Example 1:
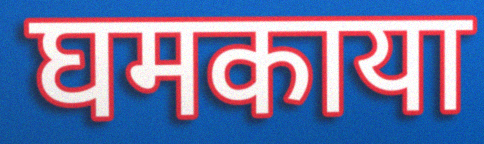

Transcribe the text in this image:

घमकाया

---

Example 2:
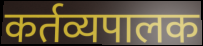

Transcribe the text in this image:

कर्तव्यपालक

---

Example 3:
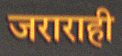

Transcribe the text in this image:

जराराही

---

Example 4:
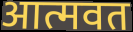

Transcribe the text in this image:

आत्मवत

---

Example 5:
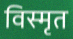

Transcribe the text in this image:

विस्मृत